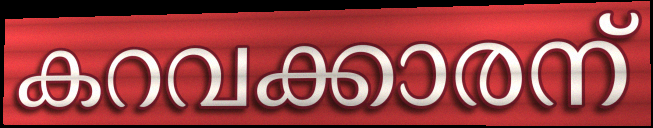
കറവക്കാരന്